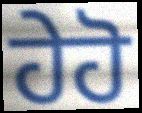
ਹੇਹੋ